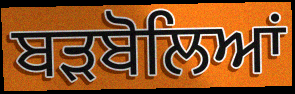
ਬੜਬੋਲਿਆਂ